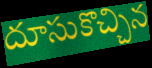
దూసుకొచ్చిన